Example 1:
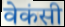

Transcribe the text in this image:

वेकंसी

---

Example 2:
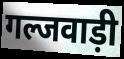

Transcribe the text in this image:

गल्जवाड़ी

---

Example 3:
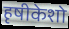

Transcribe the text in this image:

हृषीकेशो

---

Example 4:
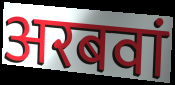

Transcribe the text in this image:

अरबवां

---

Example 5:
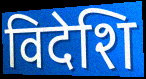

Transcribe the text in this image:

विदेशि